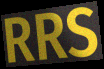
RRS